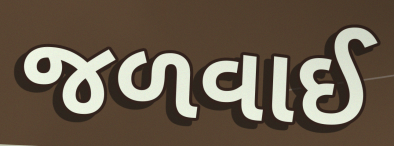
જળવાઈ